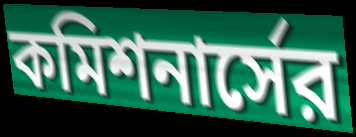
কমিশনার্সের